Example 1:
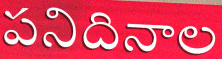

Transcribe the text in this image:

పనిదినాల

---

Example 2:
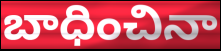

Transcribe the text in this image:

బాధించినా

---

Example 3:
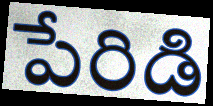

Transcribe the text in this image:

పేరిడి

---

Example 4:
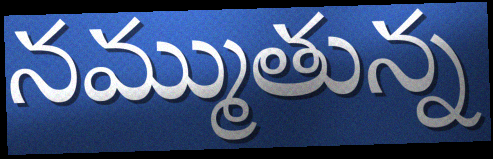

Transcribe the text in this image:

నమ్ముతున్న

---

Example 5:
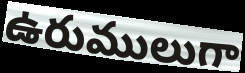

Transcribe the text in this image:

ఉరుములుగా